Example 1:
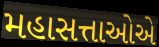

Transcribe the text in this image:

મહાસત્તાઓએ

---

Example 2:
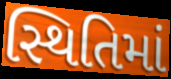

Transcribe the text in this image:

સ્થિતિમાં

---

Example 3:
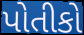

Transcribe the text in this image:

પોતીકો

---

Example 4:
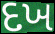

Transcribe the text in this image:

દખ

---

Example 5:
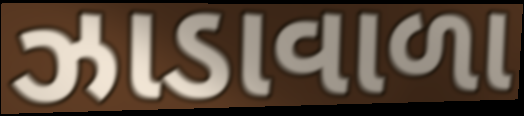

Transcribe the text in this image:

ઝાડાવાળા